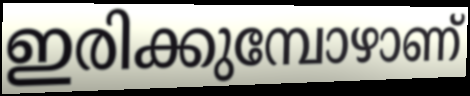
ഇരിക്കുമ്പോഴാണ്